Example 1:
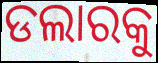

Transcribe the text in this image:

ଡଲାରକୁ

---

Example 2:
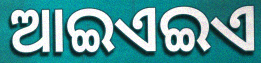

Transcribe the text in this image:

ଆଇଏଇଏ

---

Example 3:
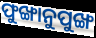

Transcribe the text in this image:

ଫୁଙ୍ଖାନୁପୁଙ୍ଖ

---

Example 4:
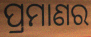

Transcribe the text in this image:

ପ୍ରମାଣର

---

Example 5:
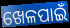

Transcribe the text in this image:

ଖେଳପାଇଁ